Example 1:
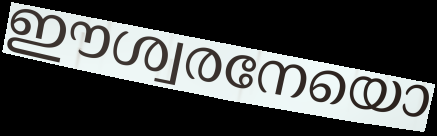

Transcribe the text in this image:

ഈശ്വരനേയൊ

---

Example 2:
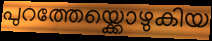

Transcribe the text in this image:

പുറത്തേയ്ക്കൊഴുകിയ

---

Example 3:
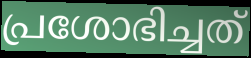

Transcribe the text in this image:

പ്രശോഭിച്ചത്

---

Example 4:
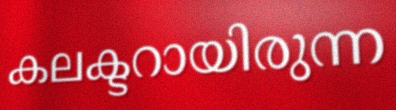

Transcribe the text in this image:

കലക്ടറായിരുന്ന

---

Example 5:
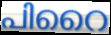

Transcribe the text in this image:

പിറൈ